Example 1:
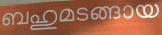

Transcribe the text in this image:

ബഹുമടങ്ങായ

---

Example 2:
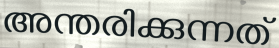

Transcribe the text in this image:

അന്തരിക്കുന്നത്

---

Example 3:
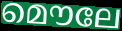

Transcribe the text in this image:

മൌലേ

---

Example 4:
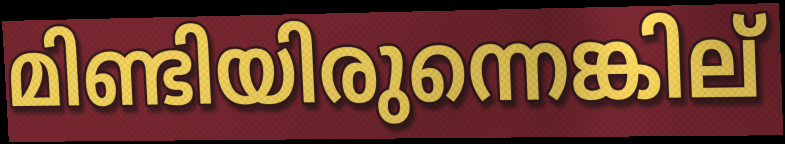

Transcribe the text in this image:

മിണ്ടിയിരുന്നെങ്കില്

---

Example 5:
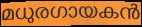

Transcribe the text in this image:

മധുരഗായകൻ